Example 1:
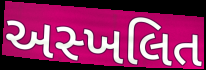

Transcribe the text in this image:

અસ્ખલિત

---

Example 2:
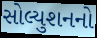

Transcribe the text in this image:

સોલ્યુશનનો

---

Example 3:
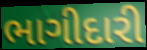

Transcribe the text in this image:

ભાગીદારી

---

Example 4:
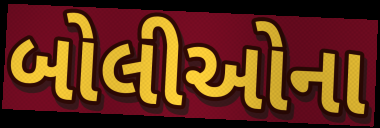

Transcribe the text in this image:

બોલીઓના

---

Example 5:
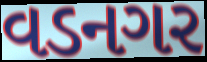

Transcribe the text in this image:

વડનગર